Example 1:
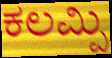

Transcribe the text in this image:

ಕಲಮ್ಪಿ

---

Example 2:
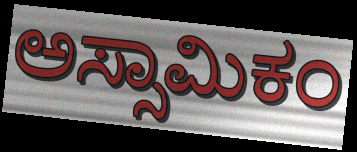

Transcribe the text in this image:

ಅಸ್ಸಾಮಿಕಂ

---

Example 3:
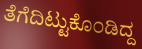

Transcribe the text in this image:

ತೆಗೆದಿಟ್ಟುಕೊಂಡಿದ್ದ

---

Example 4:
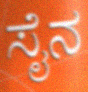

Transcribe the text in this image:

ಸೈನ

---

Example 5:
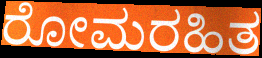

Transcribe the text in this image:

ರೋಮರಹಿತ